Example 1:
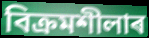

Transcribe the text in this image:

বিক্ৰমশীলাৰ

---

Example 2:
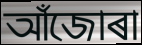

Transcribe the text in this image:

আঁজোৰা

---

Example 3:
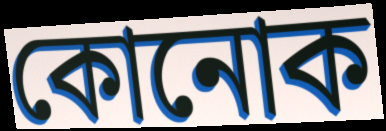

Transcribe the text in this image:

কোনোক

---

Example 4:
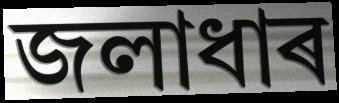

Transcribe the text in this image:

জলাধাৰ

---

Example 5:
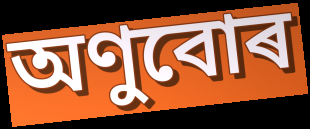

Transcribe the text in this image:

অণুবোৰ